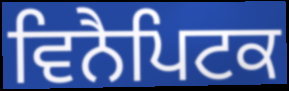
ਵਿਨੈਪਿਟਕ